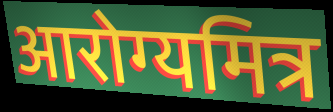
आरोग्यमित्र